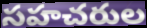
సహచరుల